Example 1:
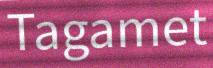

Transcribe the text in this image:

Tagamet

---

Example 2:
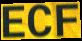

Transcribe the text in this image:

ECF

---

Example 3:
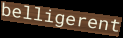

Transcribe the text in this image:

belligerent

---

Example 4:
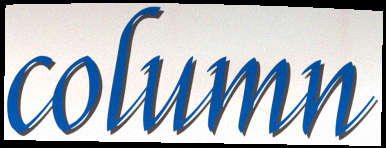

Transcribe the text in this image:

column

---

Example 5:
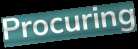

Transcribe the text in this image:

Procuring